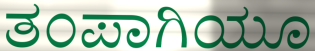
ತಂಪಾಗಿಯೂ